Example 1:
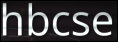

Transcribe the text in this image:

hbcse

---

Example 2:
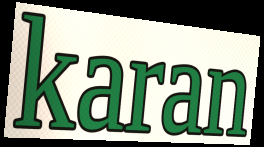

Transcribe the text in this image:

karan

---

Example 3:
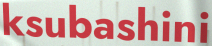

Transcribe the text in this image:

ksubashini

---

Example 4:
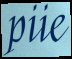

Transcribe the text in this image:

piie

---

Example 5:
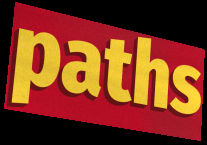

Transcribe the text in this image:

paths